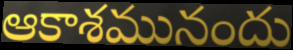
ఆకాశమునందు